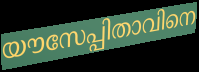
യൗസേപ്പിതാവിനെ